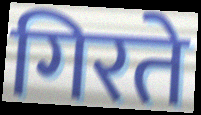
गिरते